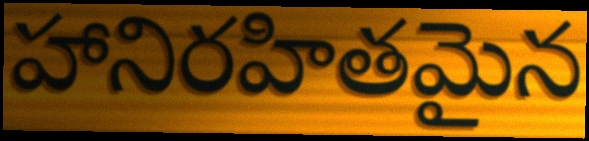
హానిరహితమైన